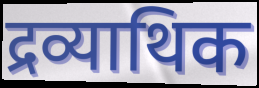
द्रव्याथिक